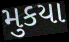
મુકયા